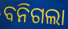
ବନିଗଲା